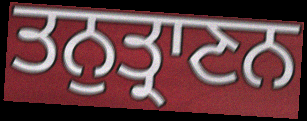
ਤਨੁਤ੍ਰਾਣਨ